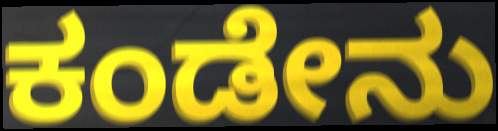
ಕಂಡೇನು